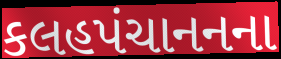
કલહપંચાનનના